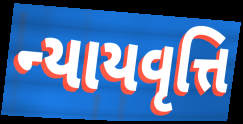
ન્યાયવૃત્તિ